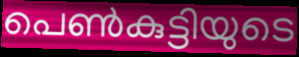
പെൺകുട്ടിയുടെ